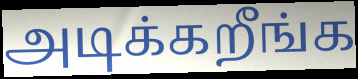
அடிக்கறீங்க